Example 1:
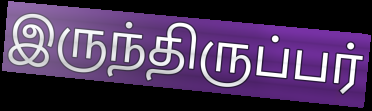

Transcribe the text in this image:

இருந்திருப்பர்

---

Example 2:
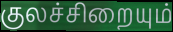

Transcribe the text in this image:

குலச்சிறையும்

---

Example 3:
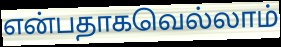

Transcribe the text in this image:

என்பதாகவெல்லாம்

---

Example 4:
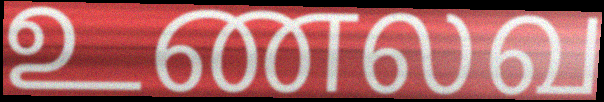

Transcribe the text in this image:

உணலவ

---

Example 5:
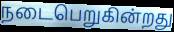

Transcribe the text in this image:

நடைபெறுகின்றது